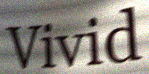
Vivid